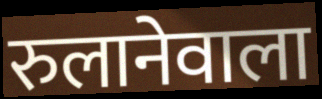
रुलानेवाला